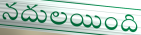
నదులయింది